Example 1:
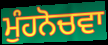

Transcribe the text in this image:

ਮੁੰਹਨੋਚਵਾ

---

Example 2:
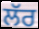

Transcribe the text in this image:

ਲੱਰ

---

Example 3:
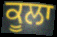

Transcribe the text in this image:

ਕੂਲਾ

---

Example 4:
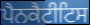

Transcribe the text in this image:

ਪੈਨਕੈਟੀਟਿਸ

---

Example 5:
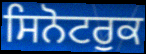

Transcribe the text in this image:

ਸਿਨੋਟਰੁਕ